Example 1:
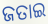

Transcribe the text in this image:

ଜତାଇ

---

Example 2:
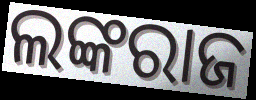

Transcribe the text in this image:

ଲଙ୍କରାଜ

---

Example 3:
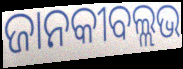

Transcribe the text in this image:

ଜାନକୀବଲ୍ଲଭ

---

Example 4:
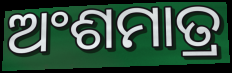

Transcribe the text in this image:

ଅଂଶମାତ୍ର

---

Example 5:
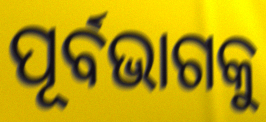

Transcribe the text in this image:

ପୂର୍ବଭାଗକୁ